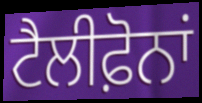
ਟੈਲੀਫ਼ੋਨਾਂ